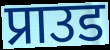
प्राउड